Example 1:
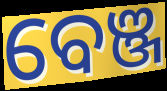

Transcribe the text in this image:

ବେଞ୍ଜ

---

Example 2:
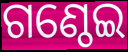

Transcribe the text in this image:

ଗଣ୍ଠେଇ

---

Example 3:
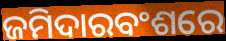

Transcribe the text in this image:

ଜମିଦାରବଂଶରେ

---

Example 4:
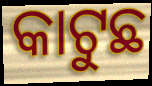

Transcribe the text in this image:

କାଟୁଛ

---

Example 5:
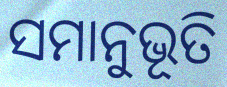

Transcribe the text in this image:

ସମାନୁଭୂତି